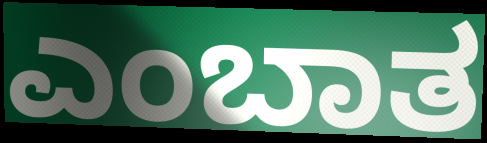
ಎಂಬಾತ